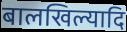
बालखिल्यादि